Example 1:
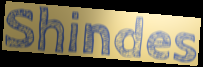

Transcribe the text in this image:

Shindes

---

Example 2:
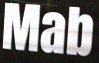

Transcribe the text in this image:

Mab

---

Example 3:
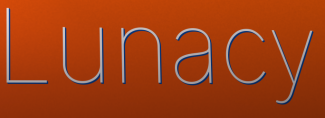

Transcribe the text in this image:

Lunacy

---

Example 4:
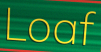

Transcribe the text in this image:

Loaf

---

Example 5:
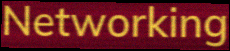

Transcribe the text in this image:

Networking